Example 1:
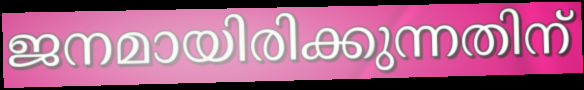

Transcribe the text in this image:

ജനമായിരിക്കുന്നതിന്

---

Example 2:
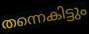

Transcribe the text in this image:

തന്നെകിട്ടും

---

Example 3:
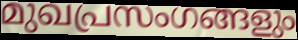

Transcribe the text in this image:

മുഖപ്രസംഗങ്ങളും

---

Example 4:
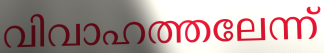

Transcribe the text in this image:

വിവാഹത്തലേന്ന്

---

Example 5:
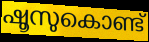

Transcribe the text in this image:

ഷൂസുകൊണ്ട്